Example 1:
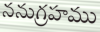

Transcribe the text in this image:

ననుగ్రహము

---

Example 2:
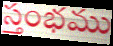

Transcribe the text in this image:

స్తంభము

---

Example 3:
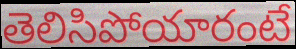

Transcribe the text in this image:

తెలిసిపోయారంటే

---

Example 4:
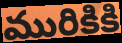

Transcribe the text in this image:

మురికికి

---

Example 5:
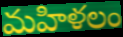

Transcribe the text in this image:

మహిళలం